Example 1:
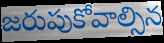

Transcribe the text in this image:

జరుపుకోవాల్సిన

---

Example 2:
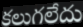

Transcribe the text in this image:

కలుగలేదు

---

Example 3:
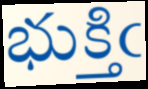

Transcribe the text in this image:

భుక్తిఁ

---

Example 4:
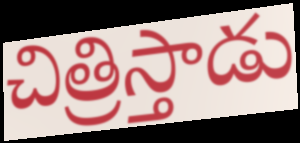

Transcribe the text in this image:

చిత్రిస్తాడు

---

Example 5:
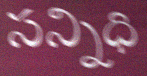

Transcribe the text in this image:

సన్నిధి